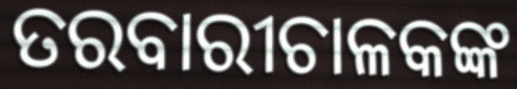
ତରବାରୀଚାଳକଙ୍କ